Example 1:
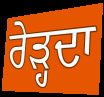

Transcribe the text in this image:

ਰੇੜ੍ਹਦਾ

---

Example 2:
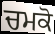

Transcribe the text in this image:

ਚਮਕੋ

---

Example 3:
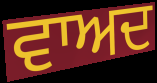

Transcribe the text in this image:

ਵਾਅਦ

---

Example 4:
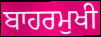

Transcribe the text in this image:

ਬਾਹਰਮੁਖੀ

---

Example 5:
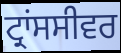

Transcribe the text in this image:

ਟ੍ਰਾਂਸਸੀਵਰ